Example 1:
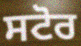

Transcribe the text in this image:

ਸਟੋਰ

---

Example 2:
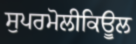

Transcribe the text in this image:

ਸੁਪਰਮੋਲੀਕਿਊਲ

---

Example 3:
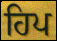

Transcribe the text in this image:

ਹਿਪ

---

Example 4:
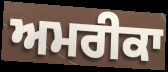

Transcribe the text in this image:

ਅਮਰੀਕਾ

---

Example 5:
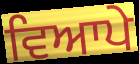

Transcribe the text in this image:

ਵਿਆਪੇ